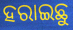
ହରାଇଛୁ